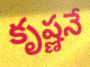
కృష్ణనే